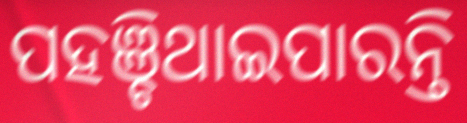
ପହଞ୍ଚିଥାଇପାରନ୍ତି